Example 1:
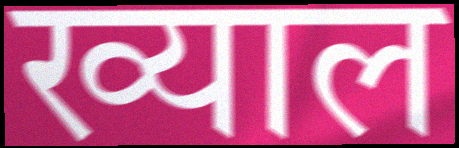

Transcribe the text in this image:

ख्याल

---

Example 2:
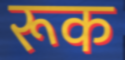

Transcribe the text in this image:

रूक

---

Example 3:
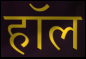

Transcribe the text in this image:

हॉल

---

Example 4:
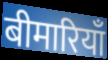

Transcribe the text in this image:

बीमारियाँ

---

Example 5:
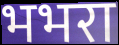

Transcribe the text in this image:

भभरा